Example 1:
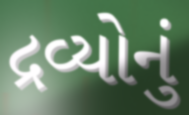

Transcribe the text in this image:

દ્રવ્યોનું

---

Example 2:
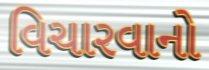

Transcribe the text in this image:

વિચારવાનો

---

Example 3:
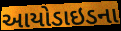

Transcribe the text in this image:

આયોડાઇડના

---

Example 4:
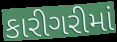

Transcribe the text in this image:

કારીગરીમાં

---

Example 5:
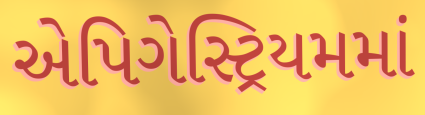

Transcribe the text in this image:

એપિગેસ્ટ્રિયમમાં